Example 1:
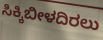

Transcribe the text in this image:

ಸಿಕ್ಕಿಬೀಳದಿರಲು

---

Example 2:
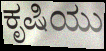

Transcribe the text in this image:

ಕೃಷಿಯು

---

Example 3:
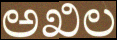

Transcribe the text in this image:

ಅಖಿಲ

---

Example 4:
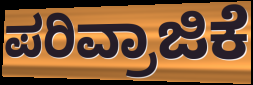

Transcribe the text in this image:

ಪರಿವ್ರಾಜಿಕೆ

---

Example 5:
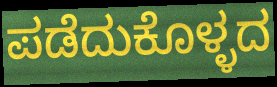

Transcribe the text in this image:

ಪಡೆದುಕೊಳ್ಳದ